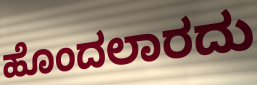
ಹೊಂದಲಾರದು